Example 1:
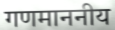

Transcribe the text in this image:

गणमाननीय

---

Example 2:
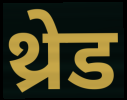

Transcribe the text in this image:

थ्रेड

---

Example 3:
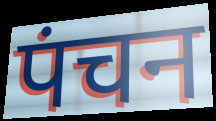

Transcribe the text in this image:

पंचन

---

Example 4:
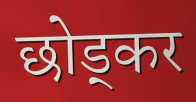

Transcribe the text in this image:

छोड्कर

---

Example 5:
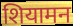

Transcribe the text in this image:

शियामन